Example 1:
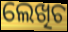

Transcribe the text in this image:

ଲେଖିଚ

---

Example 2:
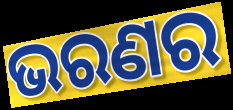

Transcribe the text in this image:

ଭରଣର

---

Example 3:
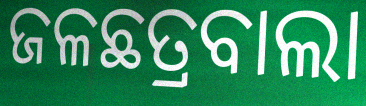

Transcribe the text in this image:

ଜଳଛତ୍ରବାଲା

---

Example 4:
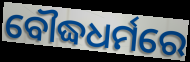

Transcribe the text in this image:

ବୌଦ୍ଧଧର୍ମରେ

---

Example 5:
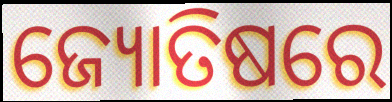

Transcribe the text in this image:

ଜ୍ୟୋତିଷରେ